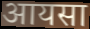
आयसा